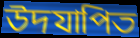
উদযাপিত